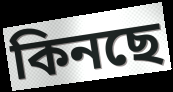
কিনছে